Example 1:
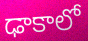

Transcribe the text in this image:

ఢాకాలో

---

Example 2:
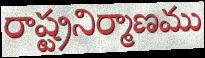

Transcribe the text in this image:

రాష్ట్రనిర్మాణము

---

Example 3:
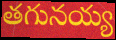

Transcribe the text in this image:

తగునయ్య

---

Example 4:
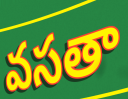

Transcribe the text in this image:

వసతా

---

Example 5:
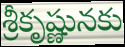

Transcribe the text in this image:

శ్రీకృష్ణునకు